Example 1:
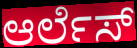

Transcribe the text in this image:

ಆರ್ಲೆಸ್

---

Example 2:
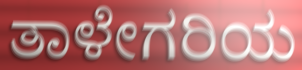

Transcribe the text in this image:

ತಾಳೇಗರಿಯ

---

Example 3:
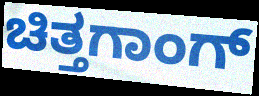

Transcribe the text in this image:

ಚಿತ್ತಗಾಂಗ್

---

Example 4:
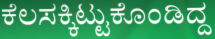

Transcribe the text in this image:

ಕೆಲಸಕ್ಕಿಟ್ಟುಕೊಂಡಿದ್ದ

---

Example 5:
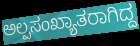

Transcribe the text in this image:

ಅಲ್ಪಸಂಖ್ಯಾತರಾಗಿದ್ದ